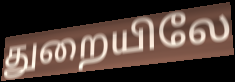
துறையிலே